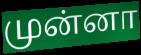
முன்னா